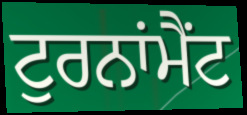
ਟੁਰਨਾਂਮੈਂਟ